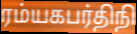
ரம்யகபர்திநி